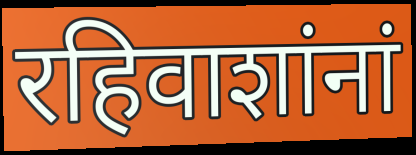
रहिवाशांनां